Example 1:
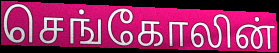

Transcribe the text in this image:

செங்கோலின்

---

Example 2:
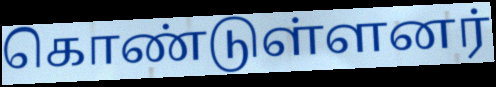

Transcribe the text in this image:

கொண்டுள்ளனர்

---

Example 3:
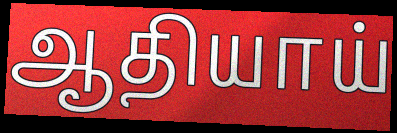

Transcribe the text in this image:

ஆதியாய்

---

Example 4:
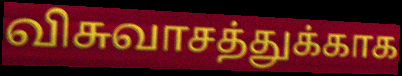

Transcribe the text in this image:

விசுவாசத்துக்காக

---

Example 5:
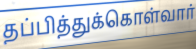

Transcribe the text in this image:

தப்பித்துக்கொள்வார்